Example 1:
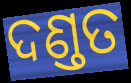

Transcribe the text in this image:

ଦଣ୍ଡତ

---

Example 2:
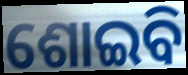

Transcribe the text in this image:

ଶୋଇବି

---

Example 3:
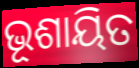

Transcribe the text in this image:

ଭୂଶାୟିତ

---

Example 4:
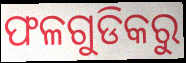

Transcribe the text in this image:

ଫଳଗୁଡିକରୁ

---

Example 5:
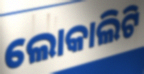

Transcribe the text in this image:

ଲୋକାଲିଟି